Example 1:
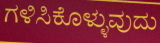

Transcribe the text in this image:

ಗಳಿಸಿಕೊಳ್ಳುವುದು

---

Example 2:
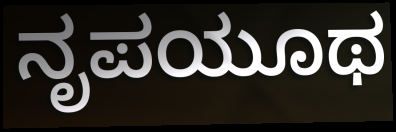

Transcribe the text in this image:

ನೃಪಯೂಥ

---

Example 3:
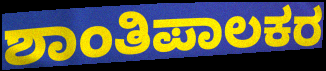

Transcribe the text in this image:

ಶಾಂತಿಪಾಲಕರ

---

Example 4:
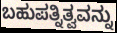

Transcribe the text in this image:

ಬಹುಪತ್ನಿತ್ವವನ್ನು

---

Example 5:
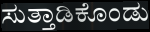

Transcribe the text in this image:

ಸುತ್ತಾಡಿಕೊಂಡು